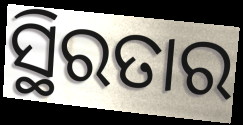
ସ୍ଥିରତାର